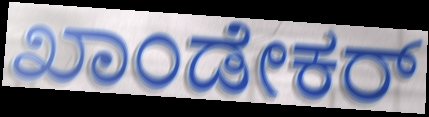
ಖಾಂಡೇಕರ್